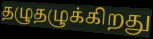
தழுதழுக்கிறது